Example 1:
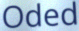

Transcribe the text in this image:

Oded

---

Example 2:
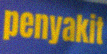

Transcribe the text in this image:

penyakit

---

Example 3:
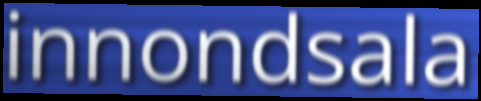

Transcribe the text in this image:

innondsala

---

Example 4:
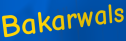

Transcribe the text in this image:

Bakarwals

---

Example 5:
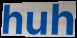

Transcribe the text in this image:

huh